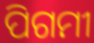
ପିଗମୀ